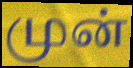
முன்